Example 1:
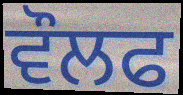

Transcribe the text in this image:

ਵੌਲਫ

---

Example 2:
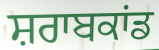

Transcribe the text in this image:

ਸ਼ਰਾਬਕਾਂਡ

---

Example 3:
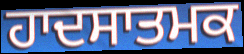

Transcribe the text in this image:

ਹਾਦਸਾਤਮਕ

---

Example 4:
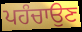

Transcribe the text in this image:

ਪਹੰਚਾਉਣ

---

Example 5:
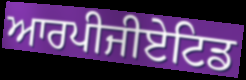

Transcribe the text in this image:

ਆਰਪੀਜੀਏਟਿਡ